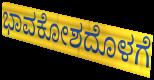
ಭಾವಕೋಶದೊಳಗೆ